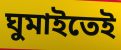
ঘুমাইতেই